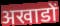
अखाडों